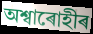
অশ্বাৰোহীৰ